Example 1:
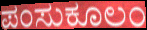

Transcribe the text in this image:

ಪಂಸುಕೂಲಂ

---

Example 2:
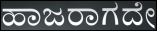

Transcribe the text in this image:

ಹಾಜರಾಗದೇ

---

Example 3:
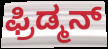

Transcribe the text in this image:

ಫ್ರಿಡ್ಮನ್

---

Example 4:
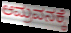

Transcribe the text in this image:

ಆಮ್ರವನಕ್ಕೆ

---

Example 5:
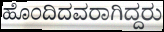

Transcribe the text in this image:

ಹೊಂದಿದವರಾಗಿದ್ದರು